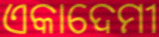
ଏକାଦେମୀ